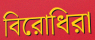
বিরোধিরা